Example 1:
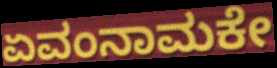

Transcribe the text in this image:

ಏವಂನಾಮಕೇ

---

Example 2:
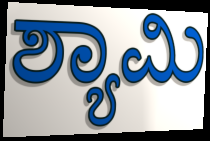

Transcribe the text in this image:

ಶ್ಯಾಮಿ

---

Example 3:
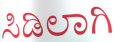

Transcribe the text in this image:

ಸಿಡಿಲಾಗಿ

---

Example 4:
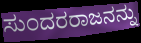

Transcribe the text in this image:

ಸುಂದರರಾಜನನ್ನು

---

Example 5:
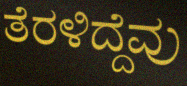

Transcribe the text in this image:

ತೆರಳಿದ್ದೆವು